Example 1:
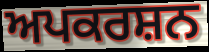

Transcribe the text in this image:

ਅਪਕਰਸ਼ਨ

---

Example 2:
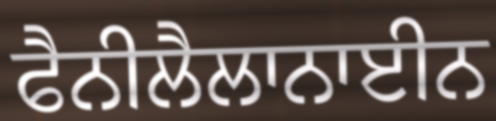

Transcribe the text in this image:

ਫੈਨੀਲੈਲਾਨਾਈਨ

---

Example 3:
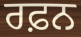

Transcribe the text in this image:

ਰਫ਼ਨ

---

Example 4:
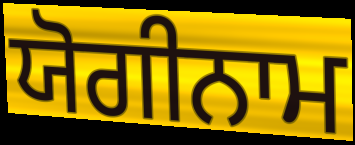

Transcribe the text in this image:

ਯੋਗੀਨਾਮ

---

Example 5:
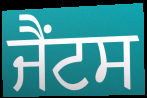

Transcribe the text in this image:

ਜੈਂਟਸ